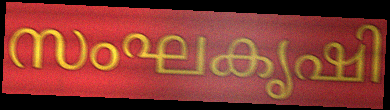
സംഘകൃഷി